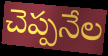
చెప్పనేల